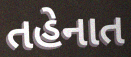
તહેનાત